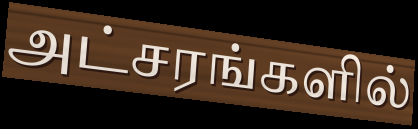
அட்சரங்களில்